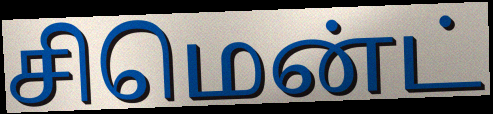
சிமென்ட்